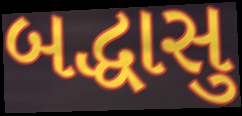
બદ્ધાસુ